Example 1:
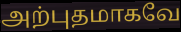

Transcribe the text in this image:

அற்புதமாகவே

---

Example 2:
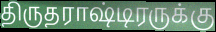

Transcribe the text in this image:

திருதராஷ்டிரருக்கு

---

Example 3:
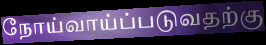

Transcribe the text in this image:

நோய்வாய்ப்படுவதற்கு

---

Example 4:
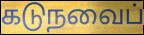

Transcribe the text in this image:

கடுநவைப்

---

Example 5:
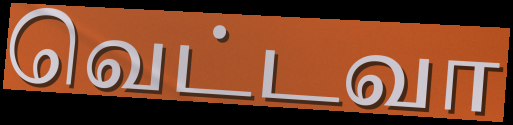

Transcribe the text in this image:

வெட்டவா